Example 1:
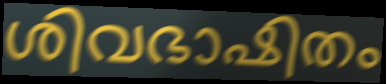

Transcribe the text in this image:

ശിവഭാഷിതം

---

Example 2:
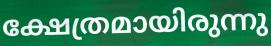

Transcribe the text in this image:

ക്ഷേത്രമായിരുന്നു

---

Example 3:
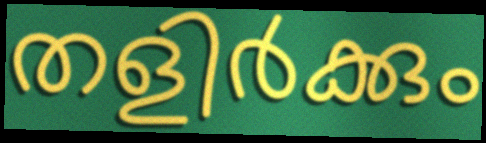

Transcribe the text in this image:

തളിർക്കും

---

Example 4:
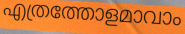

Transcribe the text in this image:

എത്രത്തോളമാവാം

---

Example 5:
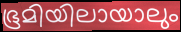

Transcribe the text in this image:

ഭൂമിയിലായാലും